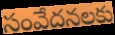
సంవేదనలకు